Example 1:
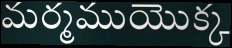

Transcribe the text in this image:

మర్మముయొక్క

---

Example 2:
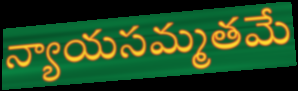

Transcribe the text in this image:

న్యాయసమ్మతమే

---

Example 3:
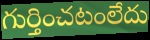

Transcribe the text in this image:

గుర్తించటంలేదు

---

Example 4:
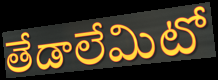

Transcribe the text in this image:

తేడాలేమిటో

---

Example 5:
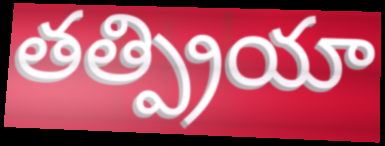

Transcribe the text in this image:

తత్ప్రియా